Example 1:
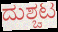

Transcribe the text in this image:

ದುಶ್ಚಟ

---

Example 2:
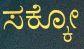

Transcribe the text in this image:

ಸಕ್ಕೋ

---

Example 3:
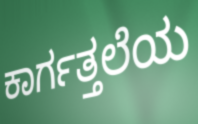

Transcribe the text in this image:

ಕಾರ್ಗತ್ತಲೆಯ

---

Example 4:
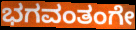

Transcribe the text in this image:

ಭಗವಂತಂಗೇ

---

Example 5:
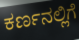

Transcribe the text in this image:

ಕರ್ಣನಲ್ಲಿಗೆ